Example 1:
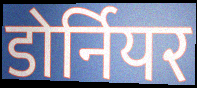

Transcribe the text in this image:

डोर्नियर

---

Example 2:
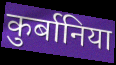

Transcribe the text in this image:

कुर्बानिया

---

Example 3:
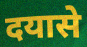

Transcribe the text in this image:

दयासे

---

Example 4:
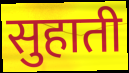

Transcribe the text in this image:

सुहाती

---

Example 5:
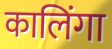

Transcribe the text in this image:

कालिंगा